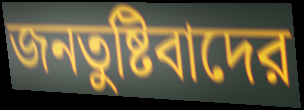
জনতুষ্টিবাদের